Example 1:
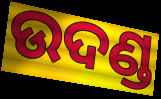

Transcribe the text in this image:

ଉଦଣ୍ଡ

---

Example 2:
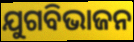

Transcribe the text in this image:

ଯୁଗବିଭାଜନ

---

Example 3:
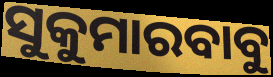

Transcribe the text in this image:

ସୁକୁମାରବାବୁ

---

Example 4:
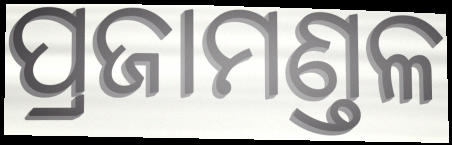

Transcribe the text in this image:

ପ୍ରଜାମଣ୍ତଳ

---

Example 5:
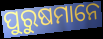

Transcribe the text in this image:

ପୁରୁଷମାନେ